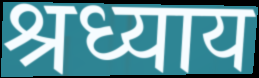
श्रध्याय